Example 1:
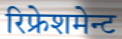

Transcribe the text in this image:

रिफ्रेशमेन्ट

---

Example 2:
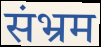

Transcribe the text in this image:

संभ्रम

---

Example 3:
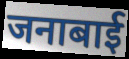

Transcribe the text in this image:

जनाबाई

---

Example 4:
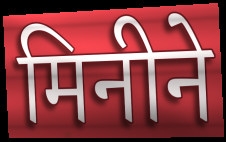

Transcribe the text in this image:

मिनीने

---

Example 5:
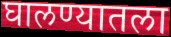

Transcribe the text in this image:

घालण्यातला